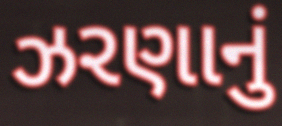
ઝરણાનું